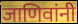
जाणिवांनी